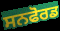
ਸਨਫੋਰਡ